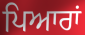
ਪਿਆਰਾਂ